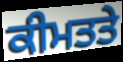
ਕੀਮਤਤੇ